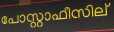
പോസ്റ്റാഫീസില്